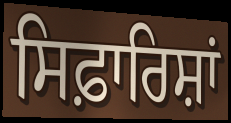
ਸਿਫ਼ਾਰਿਸ਼ਾਂ